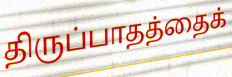
திருப்பாதத்தைக்